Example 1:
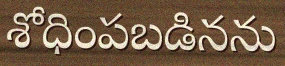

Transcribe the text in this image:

శోధింపబడినను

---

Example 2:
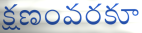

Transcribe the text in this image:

క్షణంవరకూ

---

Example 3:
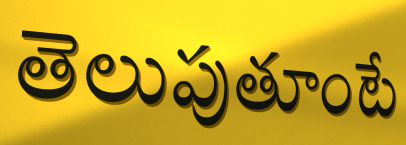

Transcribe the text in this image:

తెలుపుతూంటే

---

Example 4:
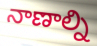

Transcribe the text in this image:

నాణాల్ని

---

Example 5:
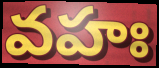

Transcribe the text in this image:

వహః